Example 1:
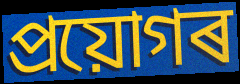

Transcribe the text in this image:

প্ৰয়োগৰ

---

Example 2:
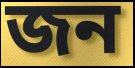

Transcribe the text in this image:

জন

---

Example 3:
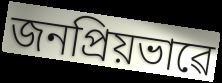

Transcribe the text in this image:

জনপ্ৰিয়ভাৱে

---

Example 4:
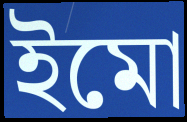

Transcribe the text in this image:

ইমো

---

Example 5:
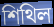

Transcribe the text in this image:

শিথিল